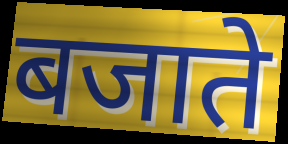
बजाते